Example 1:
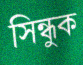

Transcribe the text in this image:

সিন্ধুক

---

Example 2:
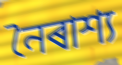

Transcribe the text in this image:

নৈৰাশ্য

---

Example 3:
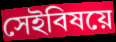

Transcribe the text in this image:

সেইবিষয়ে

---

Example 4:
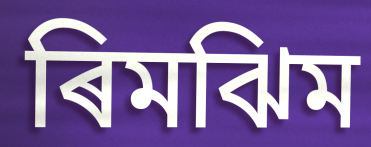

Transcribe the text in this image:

ৰিমঝিম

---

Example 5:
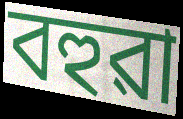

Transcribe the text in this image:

বহুৱা